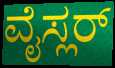
ವೈಸ್ಲರ್